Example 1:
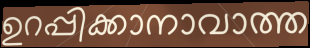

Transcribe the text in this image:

ഉറപ്പിക്കാനാവാത്ത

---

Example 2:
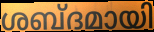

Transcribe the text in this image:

ശബ്ദമായി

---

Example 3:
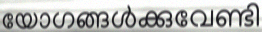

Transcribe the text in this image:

യോഗങ്ങൾക്കുവേണ്ടി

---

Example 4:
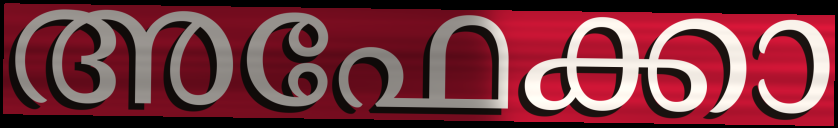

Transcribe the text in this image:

അഫേക്കാ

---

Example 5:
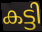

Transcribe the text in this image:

കട്ടി